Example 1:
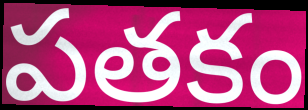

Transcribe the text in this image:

పతకం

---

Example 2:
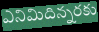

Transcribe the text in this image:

ఎనిమిదిన్నరకు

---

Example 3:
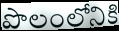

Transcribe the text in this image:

పొలంలోనికి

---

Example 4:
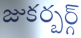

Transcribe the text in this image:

జుకర్బర్గ్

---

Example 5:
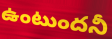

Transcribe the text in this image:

ఉంటుందనీ